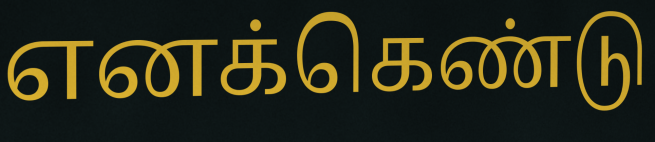
எனக்கெண்டு